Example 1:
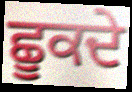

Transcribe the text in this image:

ਛੂਕਦੇ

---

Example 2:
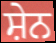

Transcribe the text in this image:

ਸ਼ੇਨ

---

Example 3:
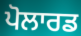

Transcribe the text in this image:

ਪੋਲਾਰਡ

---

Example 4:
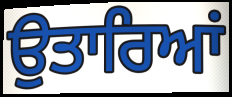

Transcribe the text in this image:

ਉਤਾਰਿਆਂ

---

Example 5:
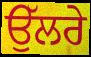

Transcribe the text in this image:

ਉੱਲਰੇ